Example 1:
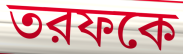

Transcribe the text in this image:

তরফকে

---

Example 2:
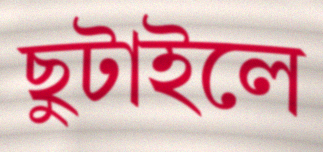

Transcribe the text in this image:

ছুটাইলে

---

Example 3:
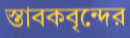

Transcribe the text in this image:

স্তাবকবৃন্দের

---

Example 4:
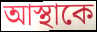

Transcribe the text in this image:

আস্থাকে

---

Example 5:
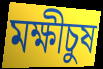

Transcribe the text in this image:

মক্ষীচুষ